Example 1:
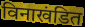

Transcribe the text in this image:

विनाखंडित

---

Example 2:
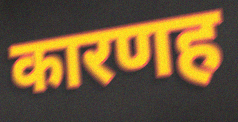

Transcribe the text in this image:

कारणह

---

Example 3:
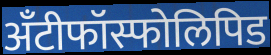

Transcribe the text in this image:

अँटीफॉस्फोलिपिड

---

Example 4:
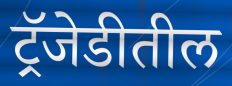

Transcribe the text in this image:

ट्रॅजेडीतील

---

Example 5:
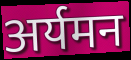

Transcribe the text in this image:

अर्यमन